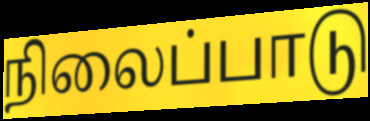
நிலைப்பாடு